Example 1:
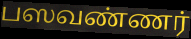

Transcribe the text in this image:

பஸவண்ணர்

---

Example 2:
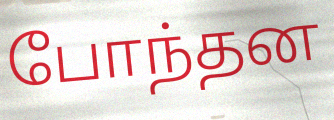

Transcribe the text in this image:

போந்தன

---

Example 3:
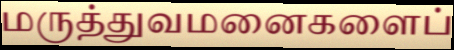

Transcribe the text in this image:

மருத்துவமனைகளைப்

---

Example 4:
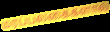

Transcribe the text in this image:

மரப்பலகைகளால்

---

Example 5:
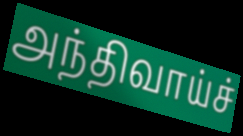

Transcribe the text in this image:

அந்திவாய்ச்